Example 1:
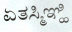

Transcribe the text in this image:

ಏತಸ್ಮಿಞ್ಹಿ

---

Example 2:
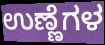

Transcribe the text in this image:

ಉಣ್ಣೆಗಳ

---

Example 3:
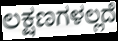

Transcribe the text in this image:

ಲಕ್ಷಣಗಳಲ್ಲದೆ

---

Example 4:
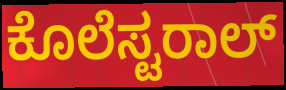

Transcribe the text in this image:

ಕೊಲೆಸ್ಟರಾಲ್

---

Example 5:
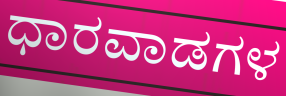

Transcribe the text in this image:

ಧಾರವಾಡಗಳ